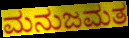
ಮನುಜಮತ